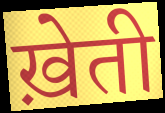
ख़ेती